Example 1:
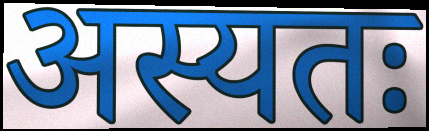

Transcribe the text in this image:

अस्यतः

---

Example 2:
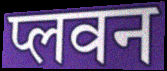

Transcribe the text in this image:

प्लवन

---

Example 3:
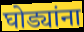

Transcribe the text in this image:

घोड्यांना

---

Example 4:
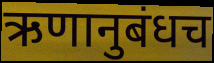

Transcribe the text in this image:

ऋणानुबंधच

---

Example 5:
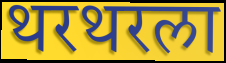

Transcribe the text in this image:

थरथरला